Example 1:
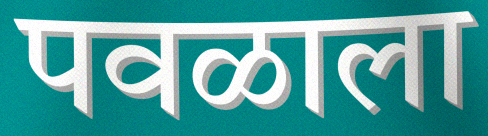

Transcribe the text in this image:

पवळाला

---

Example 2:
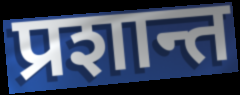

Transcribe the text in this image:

प्रशान्त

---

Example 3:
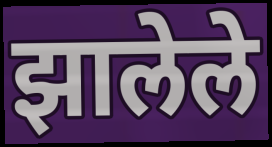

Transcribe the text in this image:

झालेले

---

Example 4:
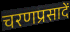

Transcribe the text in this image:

चरणप्रसादें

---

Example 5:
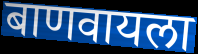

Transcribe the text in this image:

बाणवायला